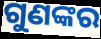
ଗୁଣଙ୍କର